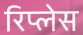
रिप्लेस